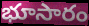
భూసారం